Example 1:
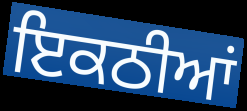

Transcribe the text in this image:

ਇਕਠੀਆਂ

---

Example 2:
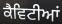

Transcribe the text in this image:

ਕੈਵਿਟੀਆਂ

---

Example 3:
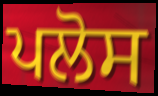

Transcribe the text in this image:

ਪਲੋਸ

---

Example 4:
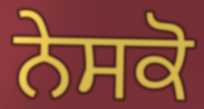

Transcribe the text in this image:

ਨੇਸਕੋ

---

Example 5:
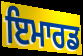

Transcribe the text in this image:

ਇਮਾਰਡ